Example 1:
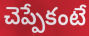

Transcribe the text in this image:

చెప్పేకంటే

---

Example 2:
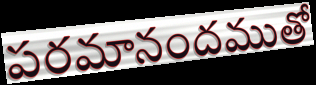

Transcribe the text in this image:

పరమానందముతో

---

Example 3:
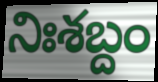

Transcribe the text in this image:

నిఃశబ్దం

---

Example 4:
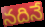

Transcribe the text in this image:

నదినే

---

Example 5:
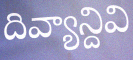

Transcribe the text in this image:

దివ్యాన్దివి